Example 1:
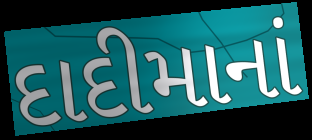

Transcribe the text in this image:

દાદીમાનાં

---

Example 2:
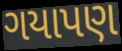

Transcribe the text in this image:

ગયાપણ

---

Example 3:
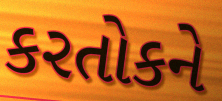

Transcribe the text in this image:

કરતોકને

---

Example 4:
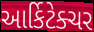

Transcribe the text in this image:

આર્કિટેક્ચર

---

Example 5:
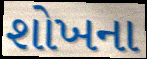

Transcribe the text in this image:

શોખના